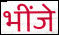
भींजे